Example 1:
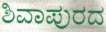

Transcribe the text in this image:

ಶಿವಾಪುರದ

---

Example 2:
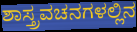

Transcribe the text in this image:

ಶಾಸ್ತ್ರವಚನಗಳಲ್ಲಿನ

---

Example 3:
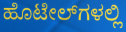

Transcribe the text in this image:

ಹೊಟೇಲ್‌ಗಳಲ್ಲಿ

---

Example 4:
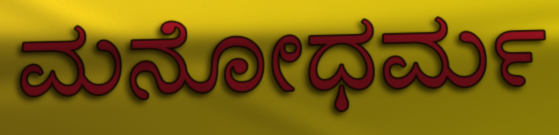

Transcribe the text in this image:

ಮನೋಧರ್ಮ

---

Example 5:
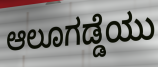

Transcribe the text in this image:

ಆಲೂಗಡ್ಡೆಯು